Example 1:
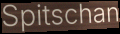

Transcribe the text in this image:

Spitschan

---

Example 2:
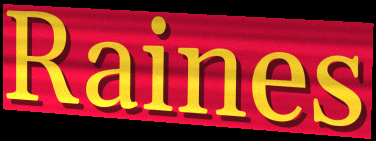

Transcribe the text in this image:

Raines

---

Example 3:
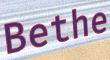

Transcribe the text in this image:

Bethe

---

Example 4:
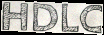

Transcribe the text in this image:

HDLC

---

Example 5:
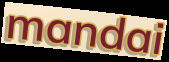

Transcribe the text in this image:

mandai